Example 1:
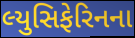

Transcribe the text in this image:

લ્યુસિફેરિનના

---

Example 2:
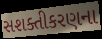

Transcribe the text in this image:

સશક્તીકરણના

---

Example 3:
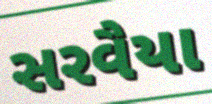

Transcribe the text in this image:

સરવૈયા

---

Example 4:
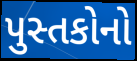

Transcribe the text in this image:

પુસ્તકોનો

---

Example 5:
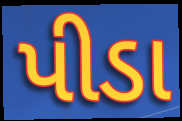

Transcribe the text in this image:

પીડા